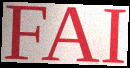
FAI